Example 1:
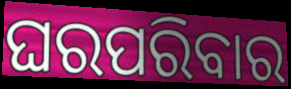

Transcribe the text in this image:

ଘରପରିବାର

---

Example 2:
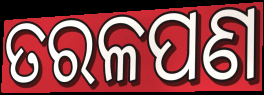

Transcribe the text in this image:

ତରଳପଣ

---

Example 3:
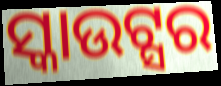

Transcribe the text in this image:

ସ୍କାଉଟ୍ସର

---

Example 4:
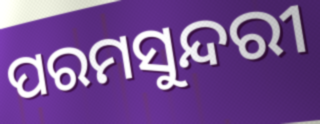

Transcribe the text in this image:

ପରମସୁନ୍ଦରୀ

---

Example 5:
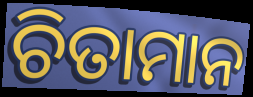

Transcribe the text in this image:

ଚିତାମାନ